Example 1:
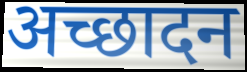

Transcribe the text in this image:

अच्छादन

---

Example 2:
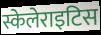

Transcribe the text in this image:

स्केलेराइटिस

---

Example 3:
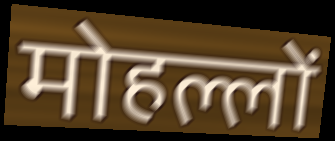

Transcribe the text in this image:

मोहल्लों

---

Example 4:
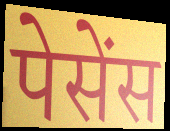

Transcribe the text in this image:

पेसेंस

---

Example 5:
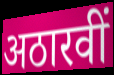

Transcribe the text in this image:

अठारवीं